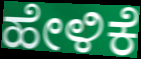
ಹೇಳಿಕೆ